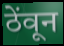
ठेंवून